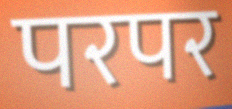
परपर